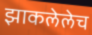
झाकलेलेच